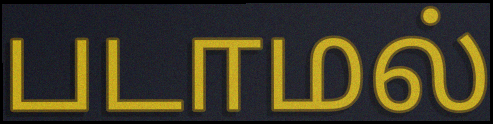
படாமல்